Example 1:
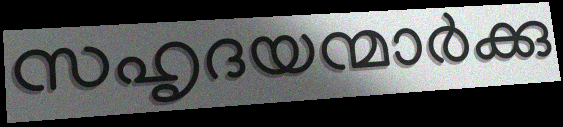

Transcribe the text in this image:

സഹൃദയന്മാർക്കു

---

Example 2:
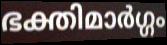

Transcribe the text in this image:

ഭക്തിമാർഗ്ഗം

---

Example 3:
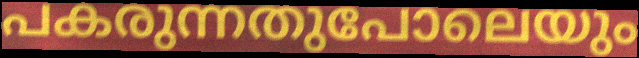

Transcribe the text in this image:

പകരുന്നതുപോലെയും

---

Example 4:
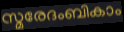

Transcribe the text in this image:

സ്മരേദംബികാം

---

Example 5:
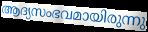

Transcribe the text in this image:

ആദ്യസംഭവമായിരുന്നു